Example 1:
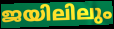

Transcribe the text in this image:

ജയിലിലും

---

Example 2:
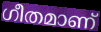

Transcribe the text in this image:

ഗീതമാണ്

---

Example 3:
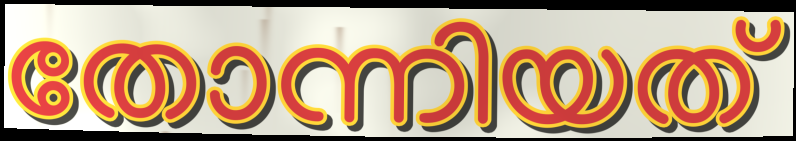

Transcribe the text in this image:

തോന്നിയത്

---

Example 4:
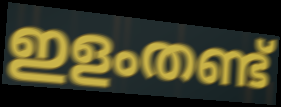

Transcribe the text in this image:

ഇളംതണ്ട്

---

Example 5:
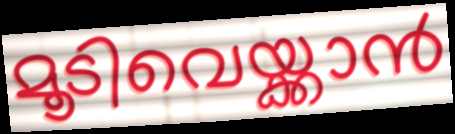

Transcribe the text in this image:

മൂടിവെയ്ക്കാൻ